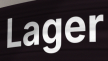
Lager